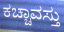
ಕಚ್ಚಾವಸ್ತು